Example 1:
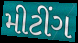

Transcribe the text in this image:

મીટીંગ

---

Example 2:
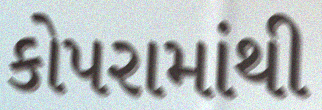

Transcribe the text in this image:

કોપરામાંથી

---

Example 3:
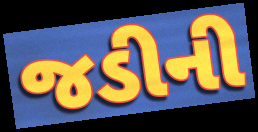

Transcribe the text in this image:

જડીની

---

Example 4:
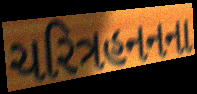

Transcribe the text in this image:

ચરિત્રહનનના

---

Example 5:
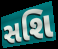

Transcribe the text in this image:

સશિ